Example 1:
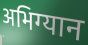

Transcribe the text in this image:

अभिग्यान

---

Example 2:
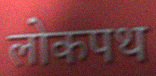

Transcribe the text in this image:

लोकपथ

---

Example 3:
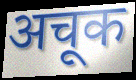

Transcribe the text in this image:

अचूक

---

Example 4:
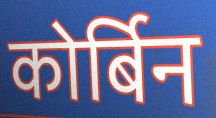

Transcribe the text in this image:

कोर्बिन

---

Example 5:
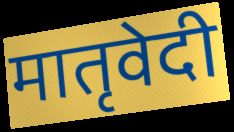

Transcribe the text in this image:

मातृवेदी